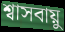
শ্বাসবায়ু